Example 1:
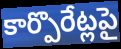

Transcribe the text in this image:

కార్పొరేట్లపై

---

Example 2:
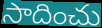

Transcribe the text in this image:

సాదించు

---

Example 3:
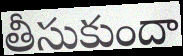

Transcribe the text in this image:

తీసుకుందా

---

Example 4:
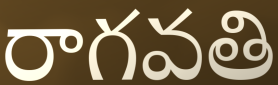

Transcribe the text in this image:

రాగవతి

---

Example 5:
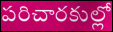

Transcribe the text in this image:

పరిచారకుల్లో